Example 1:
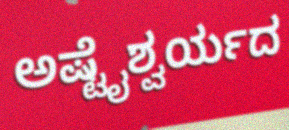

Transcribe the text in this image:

ಅಷ್ಟೈಶ್ವರ್ಯದ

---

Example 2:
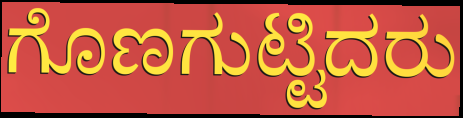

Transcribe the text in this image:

ಗೊಣಗುಟ್ಟಿದರು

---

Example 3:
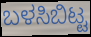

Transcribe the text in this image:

ಬಳಸಿಬಿಟ್ಟ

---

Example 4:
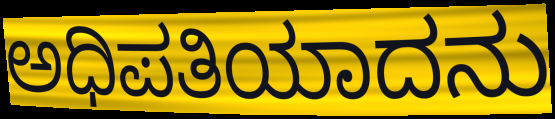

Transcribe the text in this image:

ಅಧಿಪತಿಯಾದನು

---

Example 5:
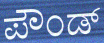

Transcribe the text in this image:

ಪೌಂಡ್